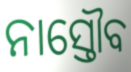
ନାସ୍ତୌବ